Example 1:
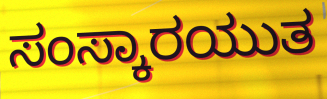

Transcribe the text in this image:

ಸಂಸ್ಕಾರಯುತ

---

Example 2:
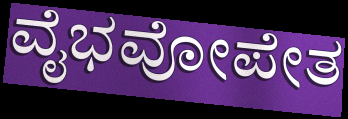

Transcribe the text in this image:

ವೈಭವೋಪೇತ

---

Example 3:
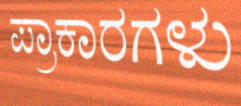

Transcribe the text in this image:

ಪ್ರಾಕಾರಗಳು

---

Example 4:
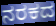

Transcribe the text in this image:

ನರಕದ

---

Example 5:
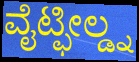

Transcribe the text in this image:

ವೈಟ್ಫೀಲ್ಡ್ನ